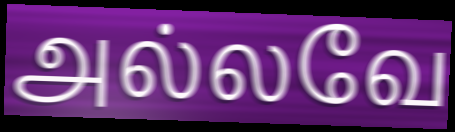
அல்லவே